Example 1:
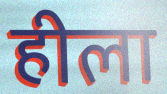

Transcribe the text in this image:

हीला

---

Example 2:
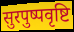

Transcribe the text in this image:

सुरपुष्पवृष्टि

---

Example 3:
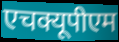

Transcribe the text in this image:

एचक्यूपीएम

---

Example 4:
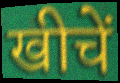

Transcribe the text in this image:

खीचें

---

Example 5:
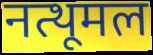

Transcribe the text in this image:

नत्थूमल